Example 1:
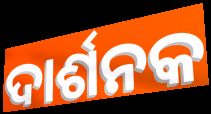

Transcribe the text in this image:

ଦାର୍ଶନକ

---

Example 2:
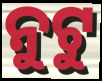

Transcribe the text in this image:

ନୁଟୁ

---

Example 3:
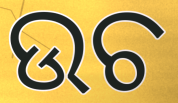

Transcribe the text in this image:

ଉଚ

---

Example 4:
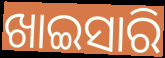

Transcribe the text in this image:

ଖାଇସାରି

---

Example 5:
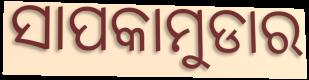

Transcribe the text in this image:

ସାପକାମୁଡାର